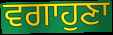
ਵਗਾਹੁਣਾ